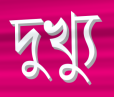
দুখ্যু